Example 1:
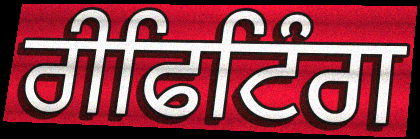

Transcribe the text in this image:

ਰੀਫਿਟਿੰਗ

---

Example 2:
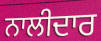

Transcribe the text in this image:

ਨਾਲੀਦਾਰ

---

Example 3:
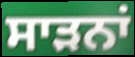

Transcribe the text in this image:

ਸਾੜਨਾਂ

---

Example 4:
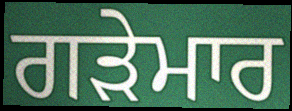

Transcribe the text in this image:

ਗੜੇਮਾਰ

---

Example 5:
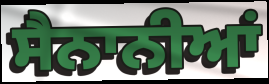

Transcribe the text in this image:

ਸੈਨਾਨੀਆਂ